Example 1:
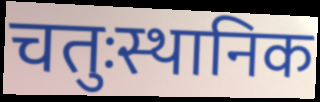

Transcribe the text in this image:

चतुःस्थानिक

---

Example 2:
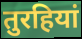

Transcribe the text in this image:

तुरहियां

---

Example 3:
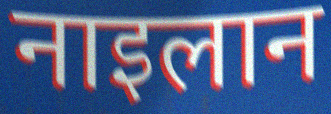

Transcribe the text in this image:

नाइलान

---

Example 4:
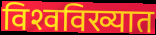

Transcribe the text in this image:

विश्वविख्यात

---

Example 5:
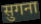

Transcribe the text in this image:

सुगना